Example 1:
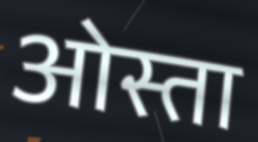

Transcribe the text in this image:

ओस्ता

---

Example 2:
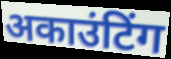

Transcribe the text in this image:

अकाउंटिंग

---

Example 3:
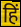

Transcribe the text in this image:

हिं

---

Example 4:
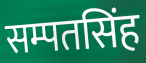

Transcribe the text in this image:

सम्पतसिंह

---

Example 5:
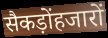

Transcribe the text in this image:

सैकड़ोंहजारों